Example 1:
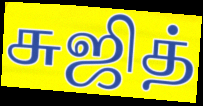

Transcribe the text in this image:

சுஜித்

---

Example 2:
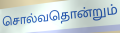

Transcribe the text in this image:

சொல்வதொன்றும்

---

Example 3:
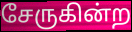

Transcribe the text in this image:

சேருகின்ற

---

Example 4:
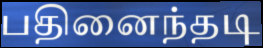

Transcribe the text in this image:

பதினைந்தடி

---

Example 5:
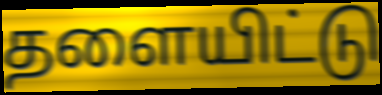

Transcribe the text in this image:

தளையிட்டு